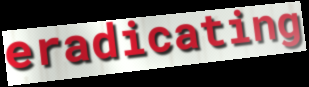
eradicating